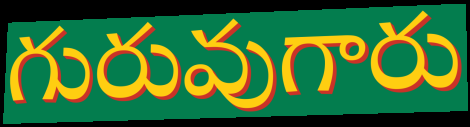
గురువుగారు